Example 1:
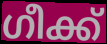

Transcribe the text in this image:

ഗീക്ക്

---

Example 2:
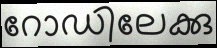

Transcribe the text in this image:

റോഡിലേക്കു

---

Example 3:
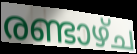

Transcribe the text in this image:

രണ്ടാഴ്ച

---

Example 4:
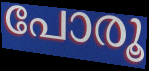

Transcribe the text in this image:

പോരൂ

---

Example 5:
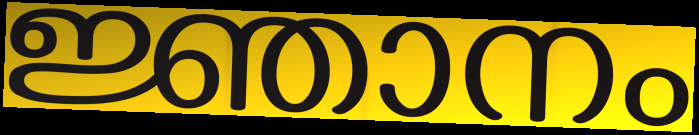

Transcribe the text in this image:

ജ്ഞാനം